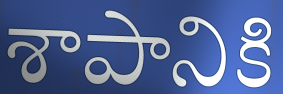
శాపానికి